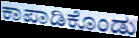
ಕಾಪಾಡಿಕೊಂಡು